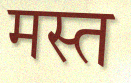
मस्त